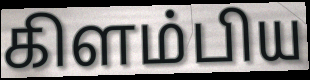
கிளம்பிய